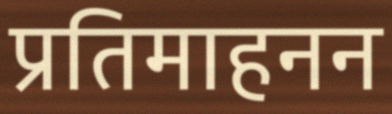
प्रतिमाहनन